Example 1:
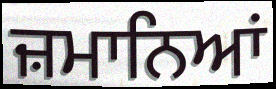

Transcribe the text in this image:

ਜ਼ਮਾਨਿਆਂ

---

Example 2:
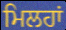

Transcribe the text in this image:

ਮਿਲਹਾਂ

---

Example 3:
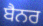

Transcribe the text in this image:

ਬੈਨਰ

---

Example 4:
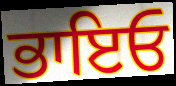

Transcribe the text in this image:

ਭਾਇਓ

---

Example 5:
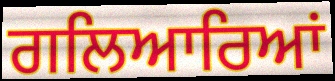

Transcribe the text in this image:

ਗਲਿਆਰਿਆਂ